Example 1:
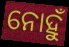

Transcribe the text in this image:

ନୋହୁଁ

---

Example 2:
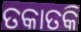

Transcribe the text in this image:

ତକାତକି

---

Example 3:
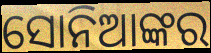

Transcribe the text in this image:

ସୋନିଆଙ୍କର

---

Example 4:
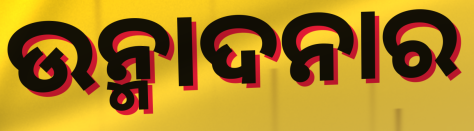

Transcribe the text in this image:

ଉନ୍ମାଦନାର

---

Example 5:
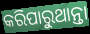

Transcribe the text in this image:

କରିପାରୁଥାନ୍ତା